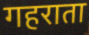
गहराता